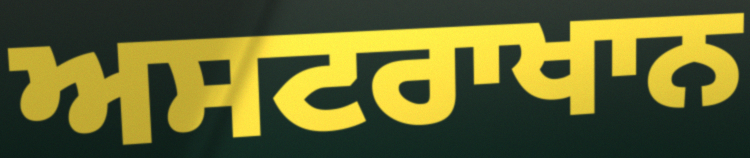
ਅਸਟਰਾਖਾਨ